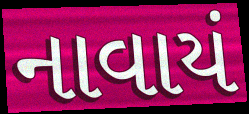
નાવાયં